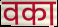
वका